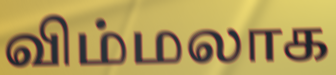
விம்மலாக